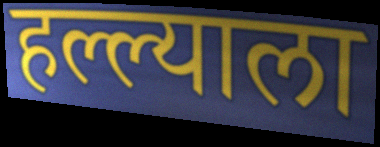
हल्ल्याला